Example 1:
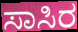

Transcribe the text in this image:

ಸಾಸಿರ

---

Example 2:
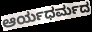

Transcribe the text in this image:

ಆರ್ಯಧರ್ಮದ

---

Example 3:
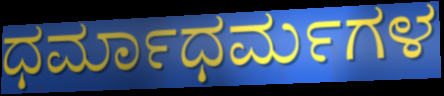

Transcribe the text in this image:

ಧರ್ಮಾಧರ್ಮಗಳ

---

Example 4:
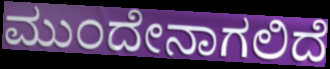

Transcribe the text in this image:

ಮುಂದೇನಾಗಲಿದೆ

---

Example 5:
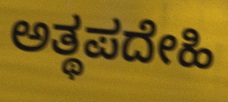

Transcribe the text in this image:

ಅತ್ಥಪದೇಹಿ